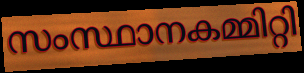
സംസ്ഥാനകമ്മിറ്റി